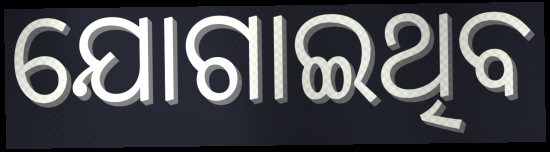
ଯୋଗାଇଥିବ